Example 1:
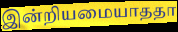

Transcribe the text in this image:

இன்றியமையாததா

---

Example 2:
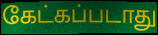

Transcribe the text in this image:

கேட்கப்படாது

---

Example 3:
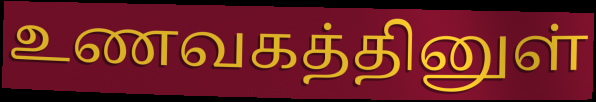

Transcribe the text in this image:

உணவகத்தினுள்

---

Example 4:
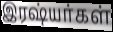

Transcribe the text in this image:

இரஷ்யர்கள்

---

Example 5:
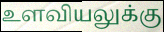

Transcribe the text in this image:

உளவியலுக்கு